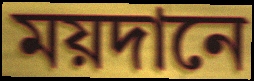
ময়দানে